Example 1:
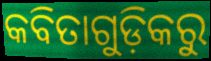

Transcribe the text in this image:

କବିତାଗୁଡ଼ିକରୁ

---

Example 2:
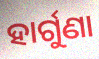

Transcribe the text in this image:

ହାର୍ଗୁଣା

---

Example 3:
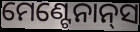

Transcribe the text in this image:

ମେଣ୍ଟେନାନ୍‌ସ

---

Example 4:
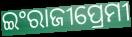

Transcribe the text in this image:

ଇଂରାଜୀପ୍ରେମୀ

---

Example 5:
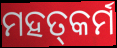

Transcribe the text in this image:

ମହତ୍‌କର୍ମ